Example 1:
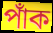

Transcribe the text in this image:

পাঁক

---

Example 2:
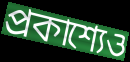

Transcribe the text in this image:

প্রকাশ্যেও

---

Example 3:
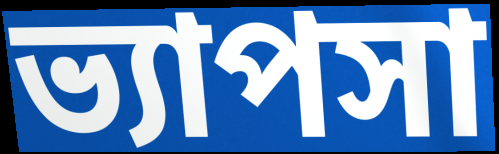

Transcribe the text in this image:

ভ্যাপসা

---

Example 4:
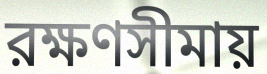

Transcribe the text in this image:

রক্ষণসীমায়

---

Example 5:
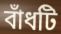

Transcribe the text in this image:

বাঁধটি